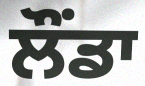
ਲੌਂਡਾ